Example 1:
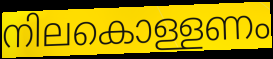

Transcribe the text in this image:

നിലകൊള്ളണം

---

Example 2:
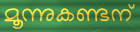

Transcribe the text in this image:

മൂന്നുകണ്ടന്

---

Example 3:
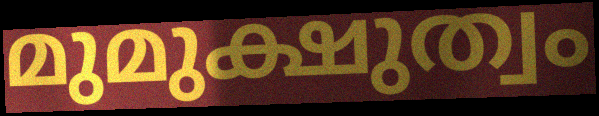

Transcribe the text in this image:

മുമുക്ഷുത്വം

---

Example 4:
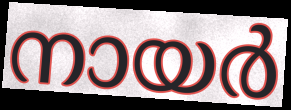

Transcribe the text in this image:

നായർ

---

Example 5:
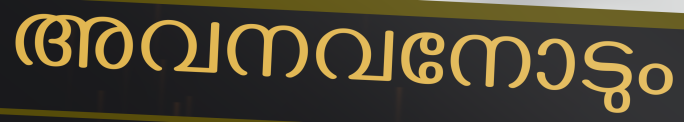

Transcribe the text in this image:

അവനവനോടും